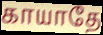
காயாதே